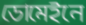
ডোমেইনে